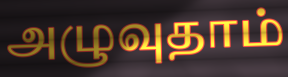
அழுவுதாம்